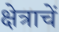
क्षेत्राचें